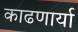
काढणार्या